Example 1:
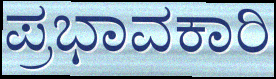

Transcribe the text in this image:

ಪ್ರಭಾವಕಾರಿ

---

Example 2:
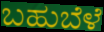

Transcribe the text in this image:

ಬಹುಬೆಳೆ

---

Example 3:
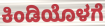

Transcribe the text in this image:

ಕಿಂಡಿಯೊಳಗೆ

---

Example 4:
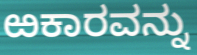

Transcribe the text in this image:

ಱಕಾರವನ್ನು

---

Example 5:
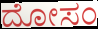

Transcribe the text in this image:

ದೋಸಂ